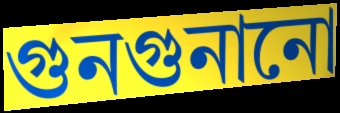
গুনগুনানো